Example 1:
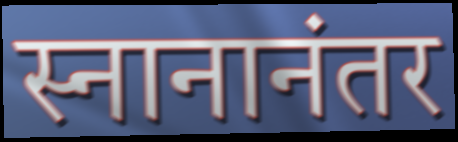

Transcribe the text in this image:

स्नानानंतर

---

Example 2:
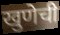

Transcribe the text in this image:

खुणेची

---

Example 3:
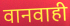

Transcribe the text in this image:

वानवाही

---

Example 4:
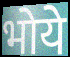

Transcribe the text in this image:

भोये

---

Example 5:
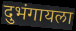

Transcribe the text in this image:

दुभंगायला